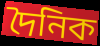
দৈনিক